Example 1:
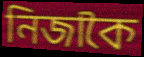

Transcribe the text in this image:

নিজাকৈ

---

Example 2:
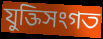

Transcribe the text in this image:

যুক্তিসংগত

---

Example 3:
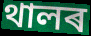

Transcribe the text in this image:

থালৰ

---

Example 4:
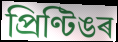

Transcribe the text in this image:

প্ৰিণ্টিঙৰ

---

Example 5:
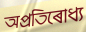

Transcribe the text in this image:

অপ্ৰতিৰোধ্য